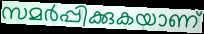
സമർപ്പിക്കുകയാണ്